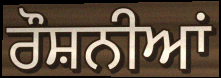
ਰੌਸ਼ਨੀਆਂ